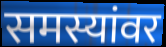
समस्यांवर